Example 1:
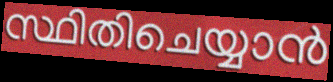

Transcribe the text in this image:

സ്ഥിതിചെയ്യാൻ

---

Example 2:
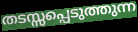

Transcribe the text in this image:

തടസ്സപ്പെടുത്തുന്ന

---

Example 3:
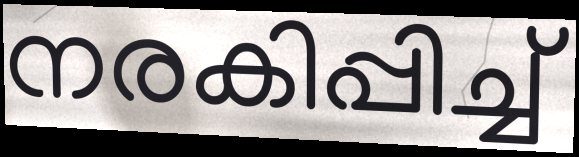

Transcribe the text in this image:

നരകിപ്പിച്ച്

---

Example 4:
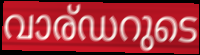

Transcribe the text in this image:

വാര്ഡറുടെ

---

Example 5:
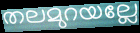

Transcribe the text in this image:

തലമുറയല്ലേ